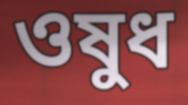
ওষুধ